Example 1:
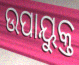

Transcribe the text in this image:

ଉପାୟୁକ୍ତ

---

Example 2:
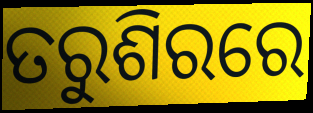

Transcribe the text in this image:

ତରୁଶିରରେ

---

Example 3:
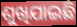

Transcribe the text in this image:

ଶୁଖିଯାଇଛି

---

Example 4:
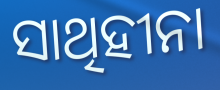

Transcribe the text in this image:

ସାଥିହୀନା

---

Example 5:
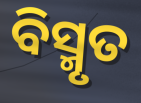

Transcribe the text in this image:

ବିସ୍ମୃତ